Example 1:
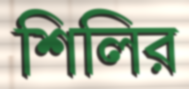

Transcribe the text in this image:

শিলির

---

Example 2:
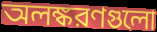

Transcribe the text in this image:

অলঙ্করণগুলো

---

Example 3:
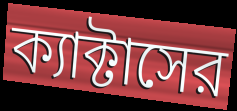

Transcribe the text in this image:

ক্যাক্টাসের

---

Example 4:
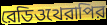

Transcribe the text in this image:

রেডিওথেরাপির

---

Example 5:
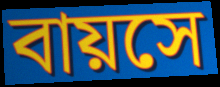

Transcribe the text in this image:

বায়সে